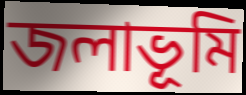
জলাভূমি